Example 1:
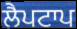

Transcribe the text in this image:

ਲੈਪਟਾਪ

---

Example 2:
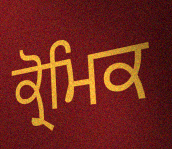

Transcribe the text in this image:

ਕ੍ਰੋਮਿਕ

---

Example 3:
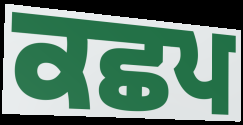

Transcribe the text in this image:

ਕਛਪ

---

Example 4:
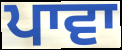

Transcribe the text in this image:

ਪਾਵਾ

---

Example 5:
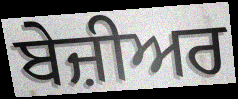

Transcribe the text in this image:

ਬੇਜ਼ੀਅਰ